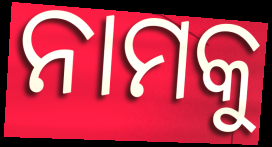
ନାମକୁ